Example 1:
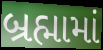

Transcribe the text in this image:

બ્રહ્મામાં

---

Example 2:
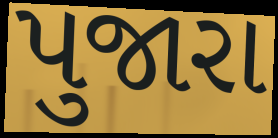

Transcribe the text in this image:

પુજારા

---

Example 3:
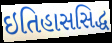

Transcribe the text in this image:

ઇતિહાસસિદ્ધ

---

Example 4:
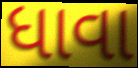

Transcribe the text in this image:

ધાવા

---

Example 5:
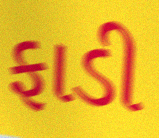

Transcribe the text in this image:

ફાડી